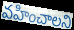
వహించాలని